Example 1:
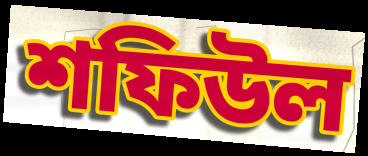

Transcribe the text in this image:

শফিউল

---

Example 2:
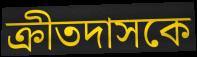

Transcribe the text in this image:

ক্রীতদাসকে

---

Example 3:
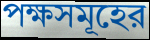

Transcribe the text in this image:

পক্ষসমূহের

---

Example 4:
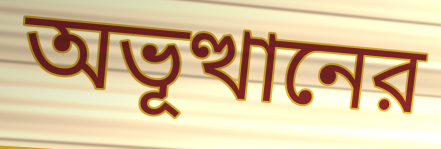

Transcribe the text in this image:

অভূত্থানের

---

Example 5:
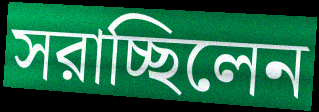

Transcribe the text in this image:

সরাচ্ছিলেন